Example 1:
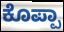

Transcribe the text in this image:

ಕೊಪ್ಪಾ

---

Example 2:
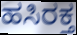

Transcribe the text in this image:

ಹಸಿರಕ್ತ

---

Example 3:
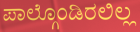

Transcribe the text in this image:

ಪಾಲ್ಗೊಂಡಿರಲಿಲ್ಲ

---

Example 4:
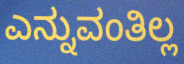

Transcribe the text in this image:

ಎನ್ನುವಂತಿಲ್ಲ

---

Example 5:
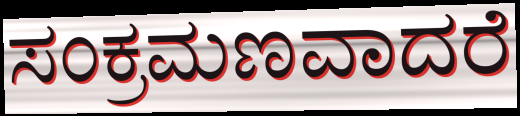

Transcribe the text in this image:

ಸಂಕ್ರಮಣವಾದರೆ